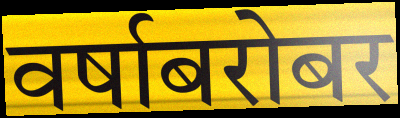
वर्षाबरोबर